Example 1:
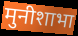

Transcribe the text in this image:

मुनीशाभा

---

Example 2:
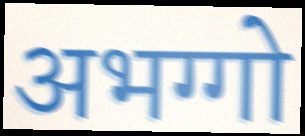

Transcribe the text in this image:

अभग्गो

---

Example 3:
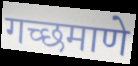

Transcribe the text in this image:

गच्छमाणे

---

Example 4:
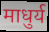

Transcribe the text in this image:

माधुर्य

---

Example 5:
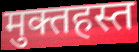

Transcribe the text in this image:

मुक्तहस्त